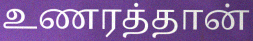
உணரத்தான்